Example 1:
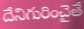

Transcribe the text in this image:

దేనిగురించైతే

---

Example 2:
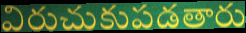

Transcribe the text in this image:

విరుచుకుపడతారు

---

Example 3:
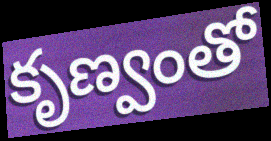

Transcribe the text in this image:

కృణ్వంతో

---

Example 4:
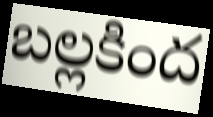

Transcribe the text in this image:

బల్లకింద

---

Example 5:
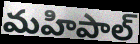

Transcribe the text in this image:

మహిపాల్